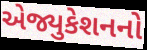
એજ્યુકેશનનો